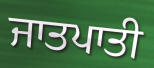
ਜਾਤਪਾਤੀ